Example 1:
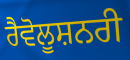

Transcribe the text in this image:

ਰੈਵੋਲੂਸ਼ਨਰੀ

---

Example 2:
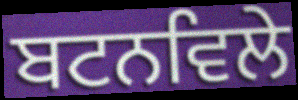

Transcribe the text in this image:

ਬਟਨਵਿਲੇ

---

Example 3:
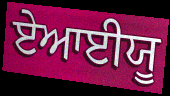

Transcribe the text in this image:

ਏਆਈਯੂ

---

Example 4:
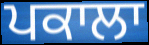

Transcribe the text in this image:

ਪਕਾਲਾ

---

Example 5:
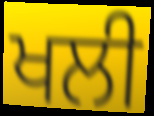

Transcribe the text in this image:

ਖਲੀ